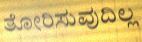
ತೋರಿಸುವುದಿಲ್ಲ